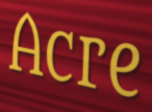
Acre